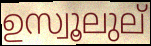
ഉസ്വൂലുല്